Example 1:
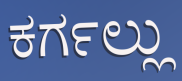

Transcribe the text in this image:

ಕರ್ಗಲ್ಲು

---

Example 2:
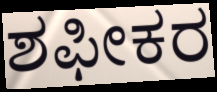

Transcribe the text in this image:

ಶಫೀಕರ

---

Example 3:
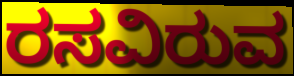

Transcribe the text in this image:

ರಸವಿರುವ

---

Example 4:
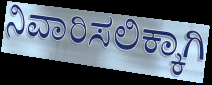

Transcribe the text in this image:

ನಿವಾರಿಸಲಿಕ್ಕಾಗಿ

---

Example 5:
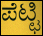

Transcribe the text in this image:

ಪೆಟ್ಟಿ